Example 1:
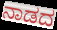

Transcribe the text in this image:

ನಾಡದ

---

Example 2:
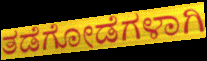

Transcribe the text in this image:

ತಡೆಗೋಡೆಗಳಾಗಿ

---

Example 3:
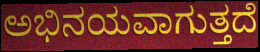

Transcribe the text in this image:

ಅಭಿನಯವಾಗುತ್ತದೆ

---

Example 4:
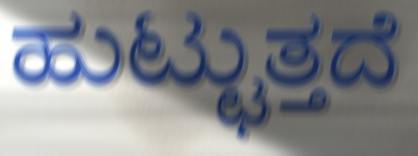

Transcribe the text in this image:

ಹುಟ್ಟುತ್ತದೆ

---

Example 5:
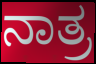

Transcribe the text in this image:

ನಾತ್ರ